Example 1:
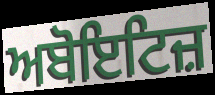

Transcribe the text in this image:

ਅਬੋਇਟਿਜ਼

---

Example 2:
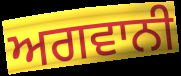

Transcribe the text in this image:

ਅਗਵਾਨੀ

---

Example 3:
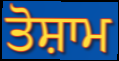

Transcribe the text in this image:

ਤੋਸ਼ਾਮ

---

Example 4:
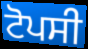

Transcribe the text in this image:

ਟੋਪਸੀ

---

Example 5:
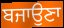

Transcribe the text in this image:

ਬਜਾਉਣਾ